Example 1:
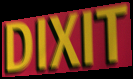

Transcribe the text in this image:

DIXIT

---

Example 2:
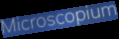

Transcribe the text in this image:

Microscopium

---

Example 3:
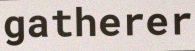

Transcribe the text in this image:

gatherer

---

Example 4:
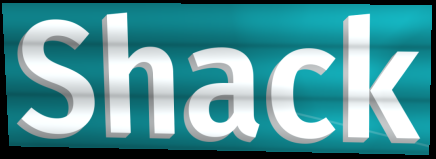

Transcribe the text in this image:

Shack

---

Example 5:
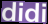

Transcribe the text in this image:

didi